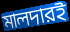
মালদারই